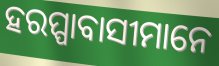
ହରପ୍ପାବାସୀମାନେ